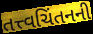
તત્ત્વચિંતનની